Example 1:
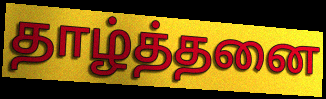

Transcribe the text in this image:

தாழ்த்தனை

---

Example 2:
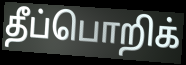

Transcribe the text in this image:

தீப்பொறிக்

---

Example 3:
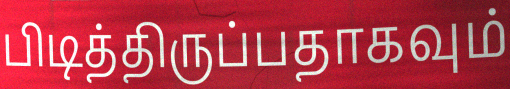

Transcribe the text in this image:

பிடித்திருப்பதாகவும்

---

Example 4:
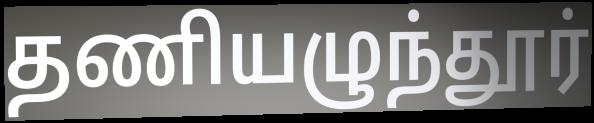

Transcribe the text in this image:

தணியழுந்தூர்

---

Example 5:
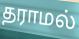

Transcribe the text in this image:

தராமல்